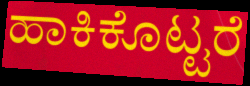
ಹಾಕಿಕೊಟ್ಟರೆ